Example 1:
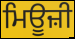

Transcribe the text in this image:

ਮਿਊਜ਼ੀ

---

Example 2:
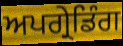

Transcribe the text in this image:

ਅਪਗ੍ਰੇਡਿੰਗ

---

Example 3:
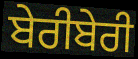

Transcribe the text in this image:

ਬੇਰੀਬੇਰੀ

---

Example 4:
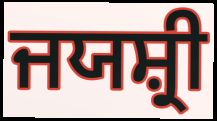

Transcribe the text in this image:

ਜਯਸ਼੍ਰੀ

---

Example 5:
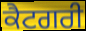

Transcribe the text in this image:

ਕੈਟਗਰੀ